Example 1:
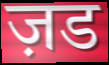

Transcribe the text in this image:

ज़ड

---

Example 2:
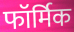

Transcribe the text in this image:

फॉर्मिक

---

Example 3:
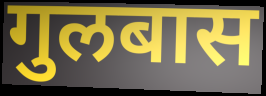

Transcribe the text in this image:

गुलबास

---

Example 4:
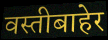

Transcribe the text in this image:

वस्तीबाहेर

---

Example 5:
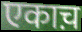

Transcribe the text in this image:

एकाच़